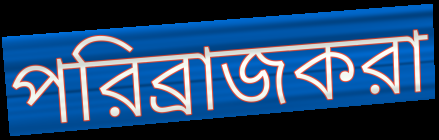
পরিব্রাজকরা